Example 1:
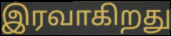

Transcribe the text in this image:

இரவாகிறது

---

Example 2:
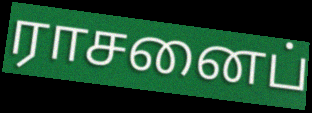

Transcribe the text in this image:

ராசனைப்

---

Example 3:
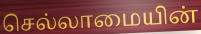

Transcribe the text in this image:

செல்லாமையின்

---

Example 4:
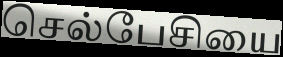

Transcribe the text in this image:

செல்பேசியை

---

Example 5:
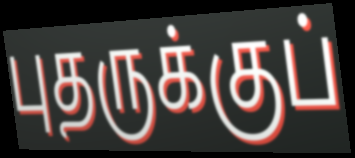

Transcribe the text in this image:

புதருக்குப்